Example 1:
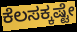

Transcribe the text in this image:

ಕೆಲಸಕ್ಕಷ್ಟೇ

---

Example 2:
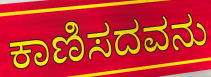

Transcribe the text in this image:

ಕಾಣಿಸದವನು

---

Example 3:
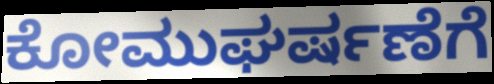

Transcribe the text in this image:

ಕೋಮುಘರ್ಷಣೆಗೆ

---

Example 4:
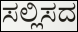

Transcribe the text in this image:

ಸಲ್ಲಿಸದ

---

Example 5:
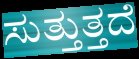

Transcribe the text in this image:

ಸುತ್ತುತ್ತದೆ